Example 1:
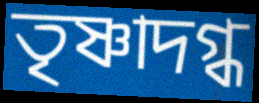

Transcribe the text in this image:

তৃষ্ণাদগ্ধ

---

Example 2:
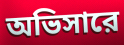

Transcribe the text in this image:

অভিসারে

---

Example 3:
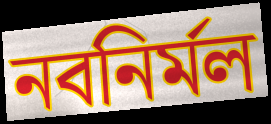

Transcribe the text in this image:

নবনির্মল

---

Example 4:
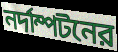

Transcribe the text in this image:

নর্দাম্পটনের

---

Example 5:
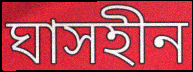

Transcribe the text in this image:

ঘাসহীন